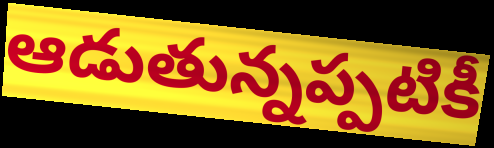
ఆడుతున్నప్పటికీ